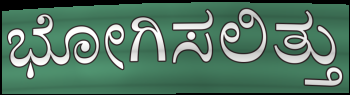
ಭೋಗಿಸಲಿತ್ತು